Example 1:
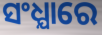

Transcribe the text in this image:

ସଂଧ୍ଯାରେ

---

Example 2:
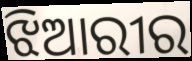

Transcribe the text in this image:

ଝିଆରୀର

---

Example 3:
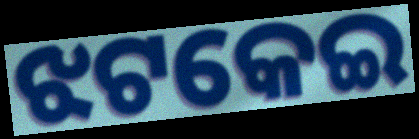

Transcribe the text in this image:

ଝଟକେଇ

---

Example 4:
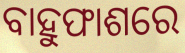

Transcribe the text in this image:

ବାହୁଫାଶରେ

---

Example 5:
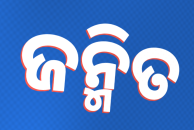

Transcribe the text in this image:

ଜନ୍ମିତ